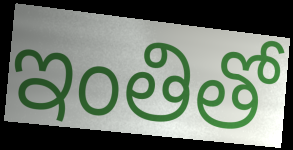
ఇంతితో